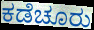
ಕಡೆಚೂರು